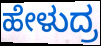
ಹೇಳುದ್ರ